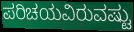
ಪರಿಚಯವಿರುವಷ್ಟು